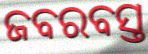
ଜବରବସ୍ତ